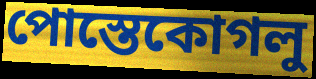
পোস্তেকোগলু